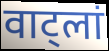
वाट्लां